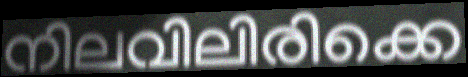
നിലവിലിരിക്കെ